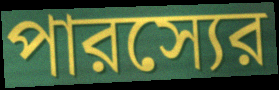
পারস্যের